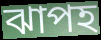
ঝাপহ